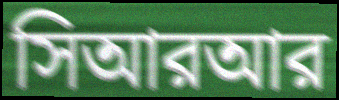
সিআরআর